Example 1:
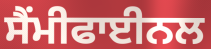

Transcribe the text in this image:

ਸੈਂਮੀਫਾਈਨਲ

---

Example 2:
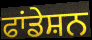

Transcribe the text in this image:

ਫਾਂਡੇਸ਼ਨ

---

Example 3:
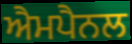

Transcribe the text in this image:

ਐਮਪੈਨਲ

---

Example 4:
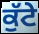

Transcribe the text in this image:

ਕੁੱਟੇ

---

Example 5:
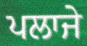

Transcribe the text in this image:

ਪਲਾਜੇ